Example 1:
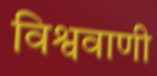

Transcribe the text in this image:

विश्ववाणी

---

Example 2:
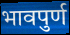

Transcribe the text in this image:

भावपुर्ण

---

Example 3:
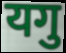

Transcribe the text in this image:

यगु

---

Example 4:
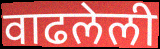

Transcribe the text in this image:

वाढलेली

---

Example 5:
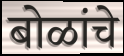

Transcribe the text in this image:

बोळांचे